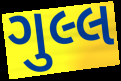
ગુલ્લ